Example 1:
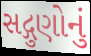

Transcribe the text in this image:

સદ્ગુણોનું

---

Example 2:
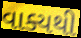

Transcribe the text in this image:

વાક્યથી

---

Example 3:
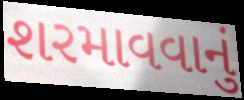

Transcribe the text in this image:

શરમાવવાનું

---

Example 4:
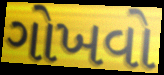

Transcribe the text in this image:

ગોખવો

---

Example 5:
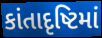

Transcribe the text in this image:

કાંતાદૃષ્ટિમાં